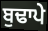
ਬੁਢਾਪੇ